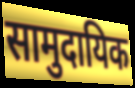
सामुदायिक